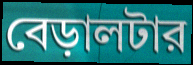
বেড়ালটার